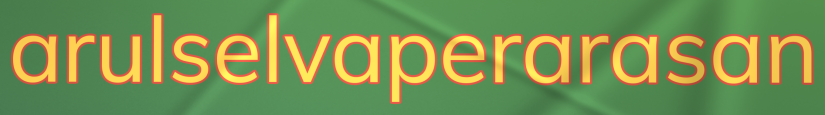
arulselvaperarasan